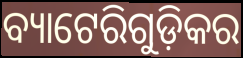
ବ୍ୟାଟେରିଗୁଡ଼ିକର